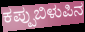
ಕಪ್ಪುಬಿಳುಪಿನ